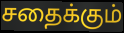
சதைக்கும்